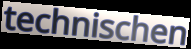
technischen